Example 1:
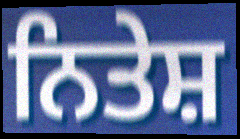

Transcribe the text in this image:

ਨਿਤੇਸ਼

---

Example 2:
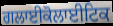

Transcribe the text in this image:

ਗਲਾਈਕੋਲਾਈਟਿਕ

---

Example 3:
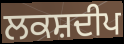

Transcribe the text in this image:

ਲਕਸ਼ਦੀਪ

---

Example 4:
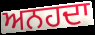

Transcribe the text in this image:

ਅਨਹਦਾ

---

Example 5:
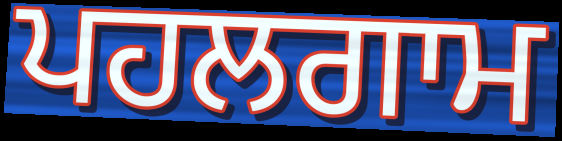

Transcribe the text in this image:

ਪਹਲਗਾਮ